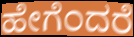
ಹೇಗೆಂದರೆ